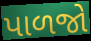
પાળજો